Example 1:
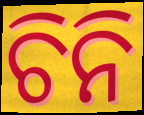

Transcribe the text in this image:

ଚିନି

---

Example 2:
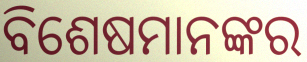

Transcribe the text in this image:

ବିଶେଷମାନଙ୍କର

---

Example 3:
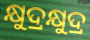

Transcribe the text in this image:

କ୍ଷୁଦ୍ରକ୍ଷୁଦ୍ର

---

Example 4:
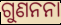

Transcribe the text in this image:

ଗୁଣନନା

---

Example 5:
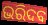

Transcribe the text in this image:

ଭରିଦବ